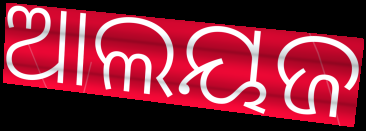
ଆଲୟଜ